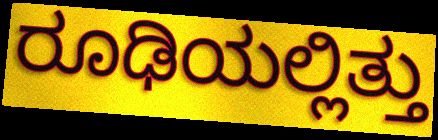
ರೂಢಿಯಲ್ಲಿತ್ತು